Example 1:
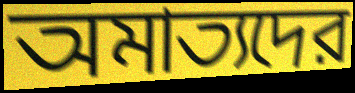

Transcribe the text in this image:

অমাত্যদের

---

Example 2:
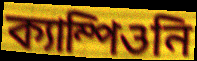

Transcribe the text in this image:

ক্যাম্পিওনি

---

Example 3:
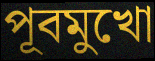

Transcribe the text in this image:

পূবমুখো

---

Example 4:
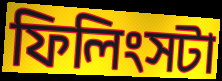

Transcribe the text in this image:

ফিলিংসটা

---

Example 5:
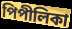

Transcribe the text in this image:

পিপীলিকা